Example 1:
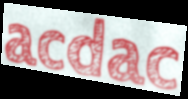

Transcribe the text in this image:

acdac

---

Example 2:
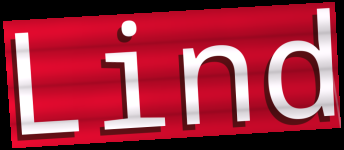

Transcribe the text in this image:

Lind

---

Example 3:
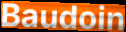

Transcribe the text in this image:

Baudoin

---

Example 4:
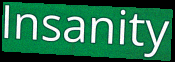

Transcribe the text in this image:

Insanity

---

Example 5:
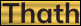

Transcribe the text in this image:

Thath